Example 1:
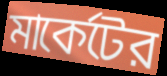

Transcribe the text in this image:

মার্কেটের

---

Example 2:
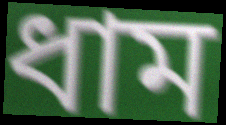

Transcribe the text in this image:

ধাম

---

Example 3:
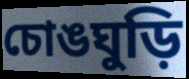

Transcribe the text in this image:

চোঙঘুড়ি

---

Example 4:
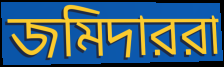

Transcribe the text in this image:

জমিদাররা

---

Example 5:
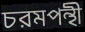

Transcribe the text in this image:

চরমপন্থী